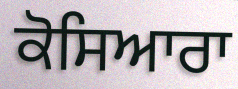
ਕੋਸਿਆਰਾ